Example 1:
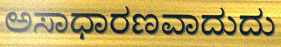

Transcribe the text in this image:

ಅಸಾಧಾರಣವಾದುದು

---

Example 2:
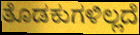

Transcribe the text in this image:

ತೊಡಕುಗಳಿಲ್ಲದೆ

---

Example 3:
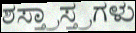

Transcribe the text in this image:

ಶಸ್ತ್ರಾಸ್ತ್ರಗಳು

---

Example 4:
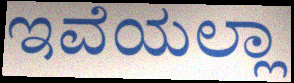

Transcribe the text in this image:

ಇವೆಯಲ್ಲಾ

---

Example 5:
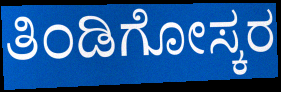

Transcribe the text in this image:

ತಿಂಡಿಗೋಸ್ಕರ